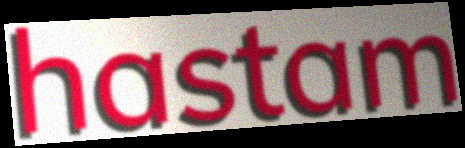
hastam